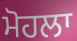
ਮੋਹਲਾ